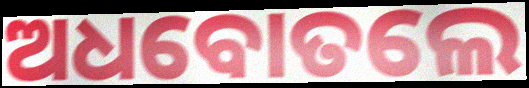
ଅଧବୋତଲେ